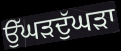
ਉੱਘੜਦੁੱਘੜਾ